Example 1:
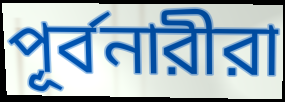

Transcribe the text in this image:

পূর্বনারীরা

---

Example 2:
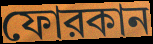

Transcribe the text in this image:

ফোরকান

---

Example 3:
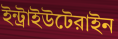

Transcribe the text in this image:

ইন্ট্রাইউটেরাইন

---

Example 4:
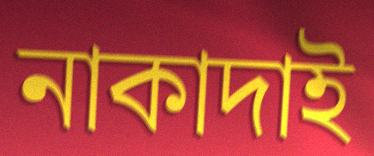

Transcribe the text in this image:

নাকাদাই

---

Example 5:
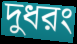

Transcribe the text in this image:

দুধরং